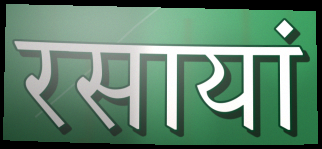
रसायां